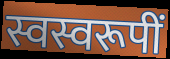
स्वस्वरूपीं